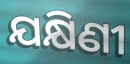
ଯକ୍ଷିଣୀ